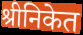
श्रीनिकेत